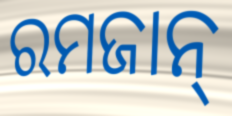
ରମଜାନ୍